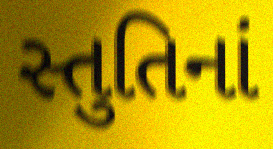
સ્તુતિનાં